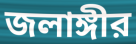
জলাঙ্গীর